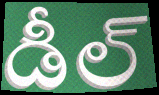
డీల్